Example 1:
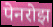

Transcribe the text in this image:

पेनरोझ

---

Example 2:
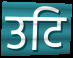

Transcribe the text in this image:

उटि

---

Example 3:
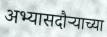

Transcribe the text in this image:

अभ्यासदौऱ्याच्या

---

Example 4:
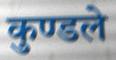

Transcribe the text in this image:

कुण्डले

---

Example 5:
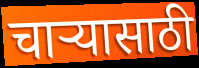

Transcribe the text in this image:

चार्‍यासाठी